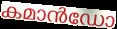
കമാൻഡോ